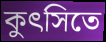
কুৎসিতে